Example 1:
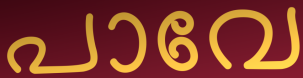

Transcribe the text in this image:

പാവേ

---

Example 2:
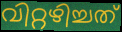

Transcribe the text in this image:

വിറ്റഴിച്ചത്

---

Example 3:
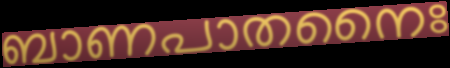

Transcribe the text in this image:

ബാണപാതനൈഃ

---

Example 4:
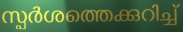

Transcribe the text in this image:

സ്പർശത്തെക്കുറിച്ച്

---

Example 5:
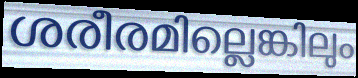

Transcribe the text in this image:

ശരീരമില്ലെങ്കിലും